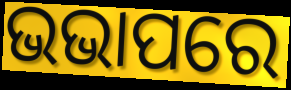
ଭଭାପରେ